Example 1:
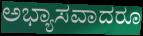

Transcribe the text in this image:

ಅಭ್ಯಾಸವಾದರೂ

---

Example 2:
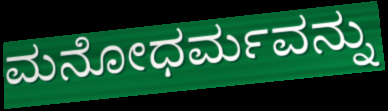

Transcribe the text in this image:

ಮನೋಧರ್ಮವನ್ನು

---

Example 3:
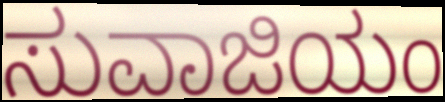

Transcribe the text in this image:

ಸುವಾಜಿಯಂ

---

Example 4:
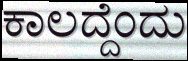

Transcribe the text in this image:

ಕಾಲದ್ದೆಂದು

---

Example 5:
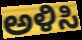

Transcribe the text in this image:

ಅಳಿಸಿ